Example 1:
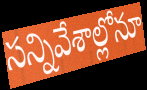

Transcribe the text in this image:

సన్నివేశాల్లోనూ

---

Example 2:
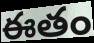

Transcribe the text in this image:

ఈతం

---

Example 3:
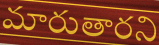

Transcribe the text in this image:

మారుతారని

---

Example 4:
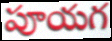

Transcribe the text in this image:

పూయగ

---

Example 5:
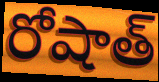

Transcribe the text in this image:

రోషాత్